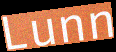
Lunn